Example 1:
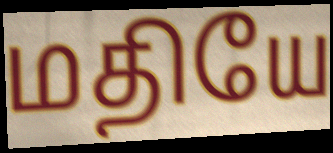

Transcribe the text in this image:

மதியே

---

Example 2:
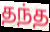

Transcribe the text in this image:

தந்த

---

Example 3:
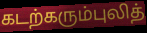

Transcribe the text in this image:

கடற்கரும்புலித்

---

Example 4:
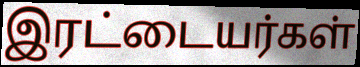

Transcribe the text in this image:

இரட்டையர்கள்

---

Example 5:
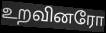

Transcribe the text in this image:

உறவினரோ